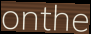
onthe